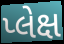
પ્લેક્ષ